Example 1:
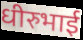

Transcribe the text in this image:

धीरुभाई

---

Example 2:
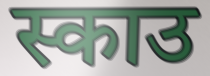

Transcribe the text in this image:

स्काउ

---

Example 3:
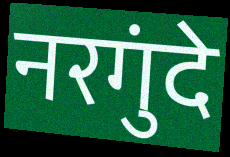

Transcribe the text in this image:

नरगुंदे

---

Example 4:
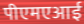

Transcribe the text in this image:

पीएमएआई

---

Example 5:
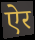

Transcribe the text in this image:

ऐर